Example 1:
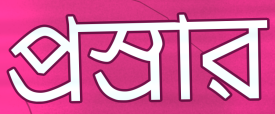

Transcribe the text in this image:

প্ৰস্ৰাৱ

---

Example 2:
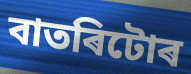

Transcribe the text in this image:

বাতৰিটোৰ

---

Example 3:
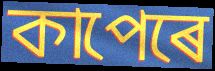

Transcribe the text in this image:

কাপেৰে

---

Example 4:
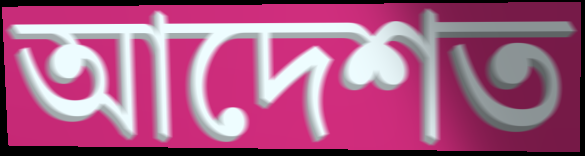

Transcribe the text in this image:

আদেশত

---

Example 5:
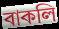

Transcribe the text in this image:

বাকলি